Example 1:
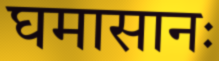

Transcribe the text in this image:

घमासानः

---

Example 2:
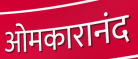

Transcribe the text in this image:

ओमकारानंद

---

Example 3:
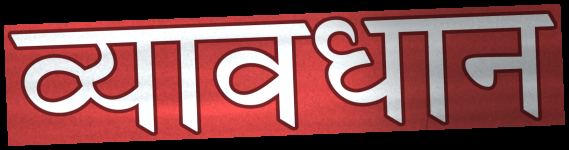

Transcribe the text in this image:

व्यावधान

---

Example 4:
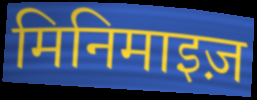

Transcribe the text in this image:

मिनिमाइज़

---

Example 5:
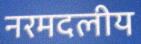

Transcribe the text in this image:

नरमदलीय